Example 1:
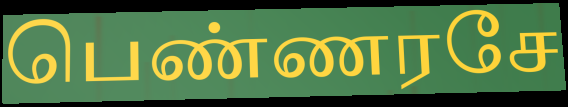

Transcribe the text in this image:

பெண்ணரசே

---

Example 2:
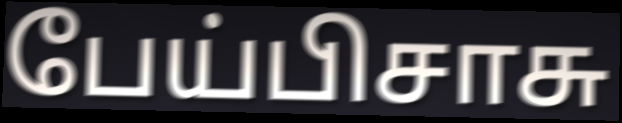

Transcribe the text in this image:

பேய்பிசாசு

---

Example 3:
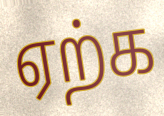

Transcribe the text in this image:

ஏற்க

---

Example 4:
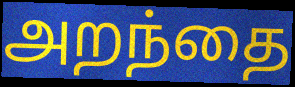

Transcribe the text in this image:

அறந்தை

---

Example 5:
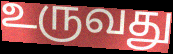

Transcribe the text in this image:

உருவது